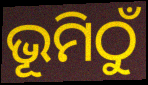
ଭୂମିଠୁଁ